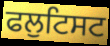
ਫਲੁਟਿਸਟ